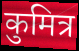
कुमित्र